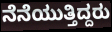
ನೆನೆಯುತ್ತಿದ್ದರು